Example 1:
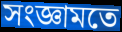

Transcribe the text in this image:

সংজ্ঞামতে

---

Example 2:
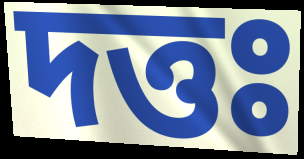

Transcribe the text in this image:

দত্তঃ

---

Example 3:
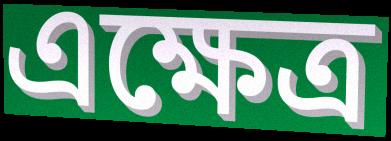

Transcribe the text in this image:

এক্ষেত্র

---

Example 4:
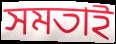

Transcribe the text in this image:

সমতাই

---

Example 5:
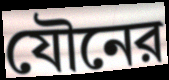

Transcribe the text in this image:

যৌনের